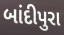
બાંદીપુરા